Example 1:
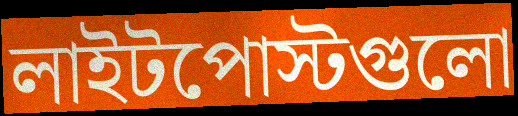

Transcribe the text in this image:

লাইটপোস্টগুলো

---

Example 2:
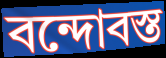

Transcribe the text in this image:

বন্দোবস্ত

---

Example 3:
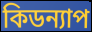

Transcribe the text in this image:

কিডন্যাপ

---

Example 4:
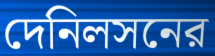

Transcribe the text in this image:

দেনিলসনের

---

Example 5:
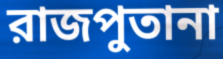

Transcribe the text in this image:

রাজপুতানা